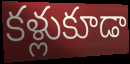
కళ్లుకూడా